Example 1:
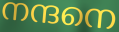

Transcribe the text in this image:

നന്ദനെ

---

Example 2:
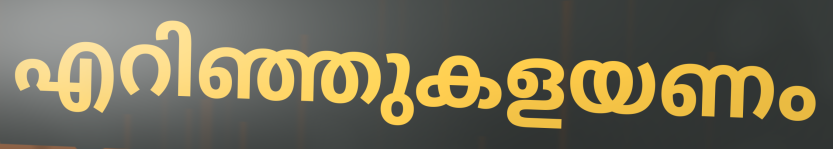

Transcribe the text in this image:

എറിഞ്ഞുകളയണം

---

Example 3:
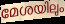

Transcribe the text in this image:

മേശയിലും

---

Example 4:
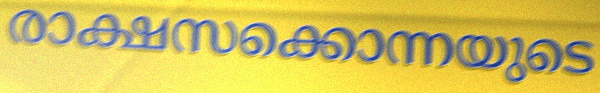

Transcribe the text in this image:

രാക്ഷസക്കൊന്നയുടെ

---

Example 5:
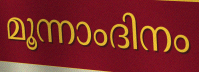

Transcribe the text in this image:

മൂന്നാംദിനം